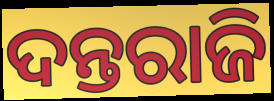
ଦନ୍ତରାଜି